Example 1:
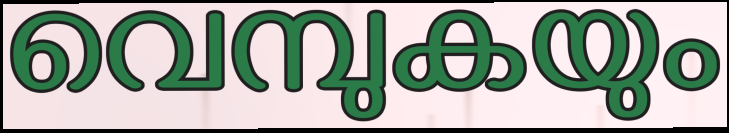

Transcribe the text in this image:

വെമ്പുകയും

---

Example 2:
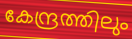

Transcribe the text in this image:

കേന്ദ്രത്തിലും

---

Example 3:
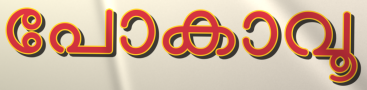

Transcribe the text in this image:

പോകാവൂ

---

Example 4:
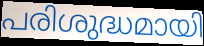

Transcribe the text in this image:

പരിശുദ്ധമായി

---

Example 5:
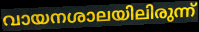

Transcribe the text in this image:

വായനശാലയിലിരുന്ന്